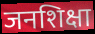
जनशिक्षा